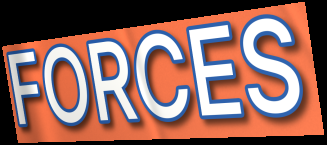
FORCES